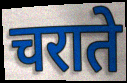
चराते